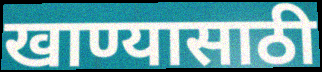
खाण्यासाठी